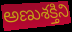
అణుశక్తిని